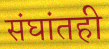
संघांतही